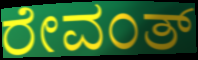
ರೇವಂತ್